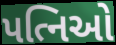
પત્નિઓ